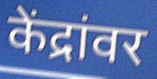
केंद्रांवर